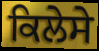
ਕਿਲੇਸੇ